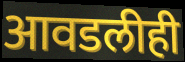
आवडलीही